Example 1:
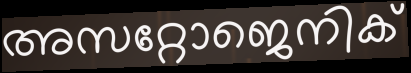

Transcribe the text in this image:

അസറ്റോജെനിക്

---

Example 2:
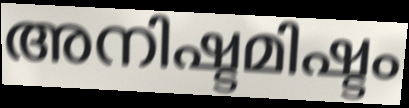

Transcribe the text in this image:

അനിഷ്ടമിഷ്ടം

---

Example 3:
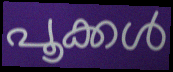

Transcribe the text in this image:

പൂക്കൾ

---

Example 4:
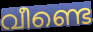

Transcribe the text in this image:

വീണ്ടെ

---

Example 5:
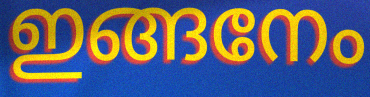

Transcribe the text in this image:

ഇങ്ങനേം